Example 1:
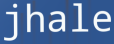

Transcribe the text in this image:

jhale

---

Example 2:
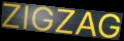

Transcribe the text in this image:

ZIGZAG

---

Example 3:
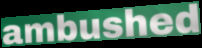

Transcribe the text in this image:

ambushed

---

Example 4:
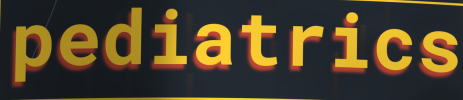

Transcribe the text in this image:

pediatrics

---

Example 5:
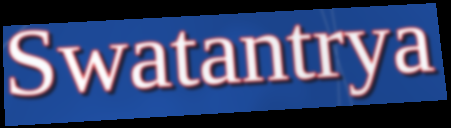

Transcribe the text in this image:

Swatantrya